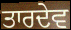
ਤਾਰਦੇਵ